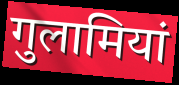
गुलामियां